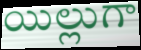
యిల్లుగా